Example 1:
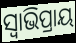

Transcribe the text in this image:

ସ୍ଵାଭିପ୍ରାୟ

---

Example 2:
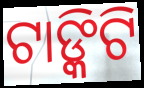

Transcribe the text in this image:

ଟାଙ୍କିଟି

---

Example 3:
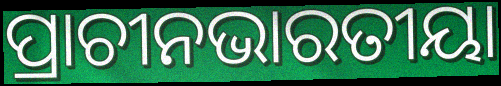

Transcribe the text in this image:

ପ୍ରାଚୀନଭାରତୀୟା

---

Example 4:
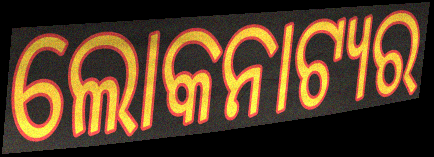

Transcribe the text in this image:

ଲୋକନାଟ୍ୟର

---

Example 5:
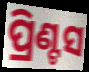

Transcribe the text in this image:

ପ୍ରିଣ୍ଟସ